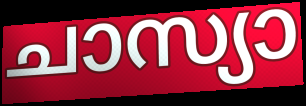
ചാസ്യാ